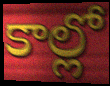
కాల్లో